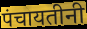
पंचायतीनी